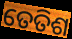
ତେତିଶ